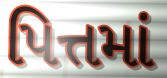
પિત્તમાં